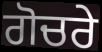
ਗੋਚਰੇ